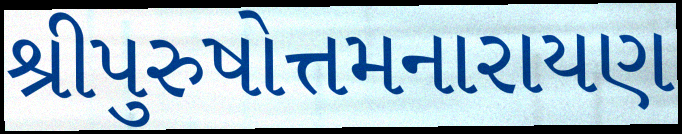
શ્રીપુરુષોત્તમનારાયણ